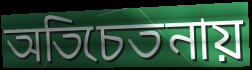
অতিচেতনায়